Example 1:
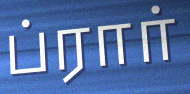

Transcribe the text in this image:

ப்ரார்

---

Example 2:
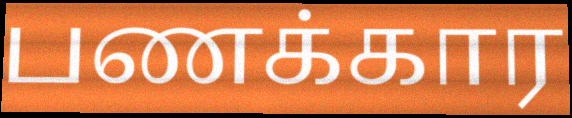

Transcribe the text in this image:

பணக்கார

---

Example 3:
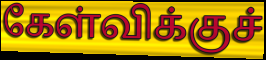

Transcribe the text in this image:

கேள்விக்குச்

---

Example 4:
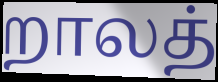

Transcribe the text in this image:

றாலத்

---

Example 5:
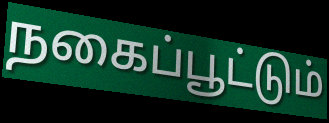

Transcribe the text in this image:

நகைப்பூட்டும்